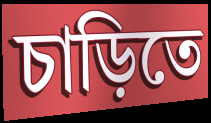
চাড়িতে